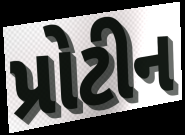
પ્રોટીન